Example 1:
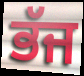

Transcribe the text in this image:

ਭੱਜ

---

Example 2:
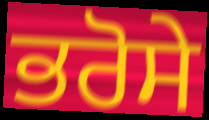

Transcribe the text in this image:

ਭਰੋਸੇ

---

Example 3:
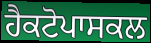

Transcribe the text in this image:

ਹੈਕਟੋਪਾਸਕਲ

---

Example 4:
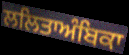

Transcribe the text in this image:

ਲਲਿਤਾਅੰਬਿਕਾ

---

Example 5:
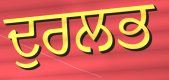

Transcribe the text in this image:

ਦੁਰਲਭ